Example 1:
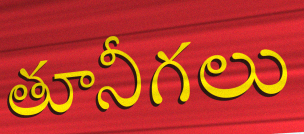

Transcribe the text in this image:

తూనీగలు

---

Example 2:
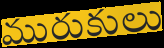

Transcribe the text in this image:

మురుకులు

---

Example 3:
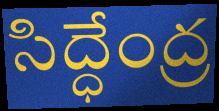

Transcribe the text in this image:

సిద్ధేంద్ర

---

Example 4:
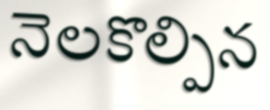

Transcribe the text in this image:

నెలకొల్పిన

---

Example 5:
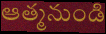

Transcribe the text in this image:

ఆత్మనుండి